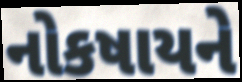
નોકષાયને